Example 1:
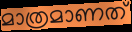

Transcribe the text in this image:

മാത്രമാണത്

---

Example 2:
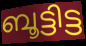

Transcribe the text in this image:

ബൂട്ടിട്ട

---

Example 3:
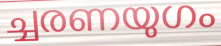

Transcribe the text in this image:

ച്ചരണയുഗം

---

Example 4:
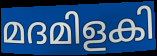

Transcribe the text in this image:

മദമിളകി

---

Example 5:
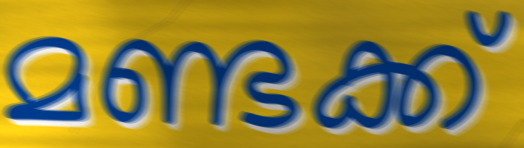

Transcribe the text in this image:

മണ്ടക്ക്